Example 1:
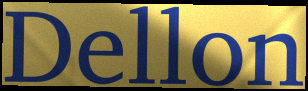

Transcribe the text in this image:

Dellon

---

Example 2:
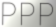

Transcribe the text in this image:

PPP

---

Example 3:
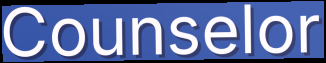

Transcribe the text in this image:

Counselor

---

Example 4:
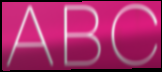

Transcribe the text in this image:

ABC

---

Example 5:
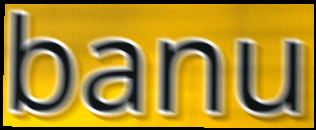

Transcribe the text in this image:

banu